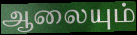
ஆலையும்